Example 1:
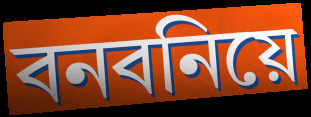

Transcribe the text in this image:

বনবনিয়ে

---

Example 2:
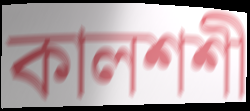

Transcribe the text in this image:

কালশশী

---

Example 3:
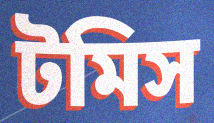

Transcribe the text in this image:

টমিস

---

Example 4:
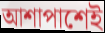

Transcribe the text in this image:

আশাপাশেই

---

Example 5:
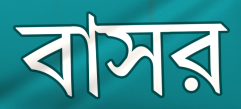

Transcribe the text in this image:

বাসর